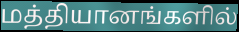
மத்தியானங்களில்